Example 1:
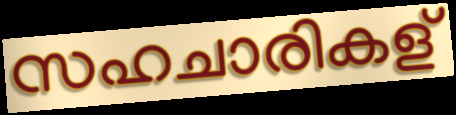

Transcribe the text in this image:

സഹചാരികള്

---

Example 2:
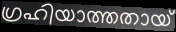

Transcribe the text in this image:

ഗ്രഹിയാത്തതായ്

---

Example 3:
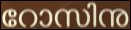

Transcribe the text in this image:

റോസിനു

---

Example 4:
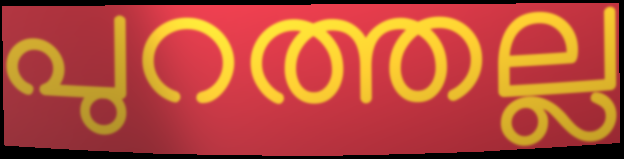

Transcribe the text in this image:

പുറത്തല്ല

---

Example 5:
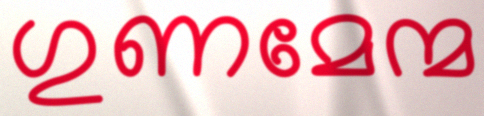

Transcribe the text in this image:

ഗുണമേന്മ